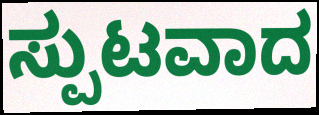
ಸ್ಪುಟವಾದ